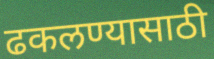
ढकलण्यासाठी